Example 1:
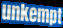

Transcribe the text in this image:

unkempt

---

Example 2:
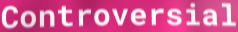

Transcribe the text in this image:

Controversial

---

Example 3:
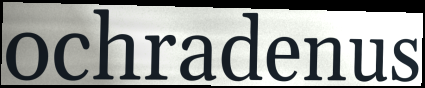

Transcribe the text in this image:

ochradenus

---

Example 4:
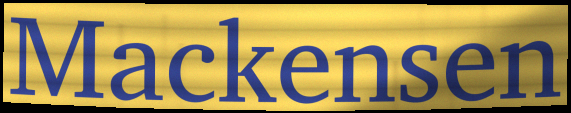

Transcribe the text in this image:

Mackensen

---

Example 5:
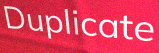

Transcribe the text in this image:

Duplicate